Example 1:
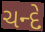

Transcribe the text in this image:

ચન્દે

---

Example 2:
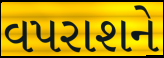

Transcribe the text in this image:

વપરાશને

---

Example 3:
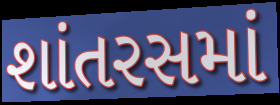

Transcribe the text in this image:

શાંતરસમાં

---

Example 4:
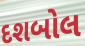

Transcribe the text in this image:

દશબોલ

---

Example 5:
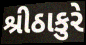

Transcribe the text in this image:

શ્રીઠાકુરે